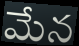
మేన